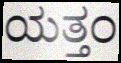
ಯತ್ತಂ